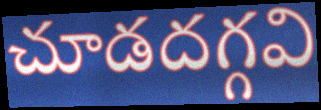
చూడదగ్గవి